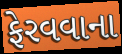
ફેરવવાના